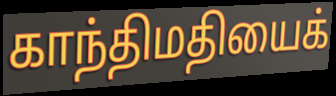
காந்திமதியைக்